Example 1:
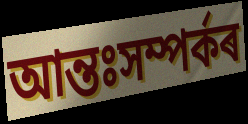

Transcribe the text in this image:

আন্তঃসম্পৰ্কৰ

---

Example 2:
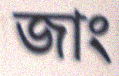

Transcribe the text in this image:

জাং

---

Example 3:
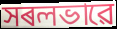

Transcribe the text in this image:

সৰলভাৱে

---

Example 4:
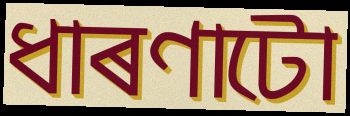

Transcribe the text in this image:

ধাৰণাটো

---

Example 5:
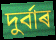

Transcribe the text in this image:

দুৰ্বাৰ